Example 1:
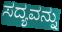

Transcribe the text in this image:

ಸದ್ಯವನ್ನು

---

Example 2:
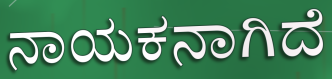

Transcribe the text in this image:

ನಾಯಕನಾಗಿದೆ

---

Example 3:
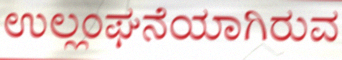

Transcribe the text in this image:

ಉಲ್ಲಂಘನೆಯಾಗಿರುವ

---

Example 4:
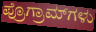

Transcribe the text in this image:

ಪ್ರೊಗ್ರಾಮ್‌ಗಳು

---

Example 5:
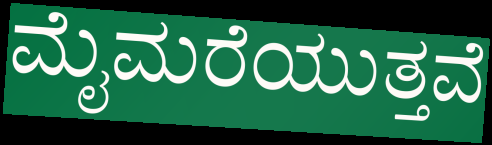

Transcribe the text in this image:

ಮೈಮರೆಯುತ್ತವೆ